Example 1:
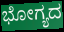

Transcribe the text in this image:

ಭೋಗ್ಯದ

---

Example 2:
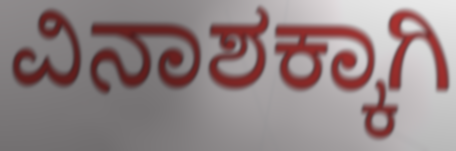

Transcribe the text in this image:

ವಿನಾಶಕ್ಕಾಗಿ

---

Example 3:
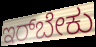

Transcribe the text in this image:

ಇರ್‌ಬೇಕು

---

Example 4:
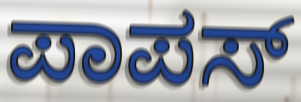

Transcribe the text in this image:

ಪಾಪಸ್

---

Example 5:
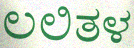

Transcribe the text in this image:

ಲಲಿತಳ